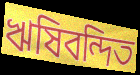
ঋষিবন্দিত